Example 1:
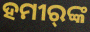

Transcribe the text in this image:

ହମୀର୍‍ଙ୍କ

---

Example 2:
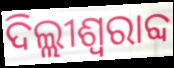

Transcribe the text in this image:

ଦିଲ୍ଲୀଶ୍ୱରାବ୍ଦ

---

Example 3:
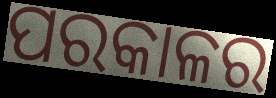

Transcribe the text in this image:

ପରକାଳର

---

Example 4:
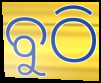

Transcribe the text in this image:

ବୁଠି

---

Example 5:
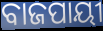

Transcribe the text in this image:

ବାଜପାୟୀ